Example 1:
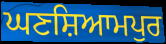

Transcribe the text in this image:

ਘਣਸ਼ਿਆਮਪੁਰ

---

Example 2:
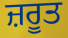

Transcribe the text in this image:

ਜ਼ਰੂਤ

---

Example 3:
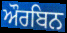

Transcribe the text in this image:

ਔਰਬਿਨ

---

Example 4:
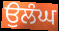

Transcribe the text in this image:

ਉਲੰਘ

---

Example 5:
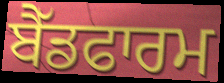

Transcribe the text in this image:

ਬੈੱਡਫਾਰਮ